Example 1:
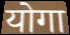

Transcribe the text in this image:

योगा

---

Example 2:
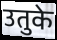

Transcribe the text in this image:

उतुके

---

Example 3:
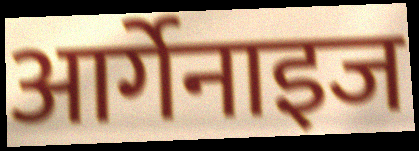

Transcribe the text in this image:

आर्गेनाइज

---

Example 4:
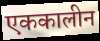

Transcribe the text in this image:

एककालीन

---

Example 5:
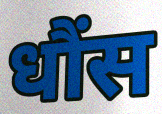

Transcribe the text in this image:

धौंस